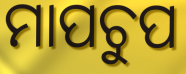
ମାପଚୁପ